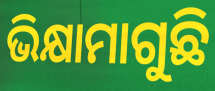
ଭିକ୍ଷାମାଗୁଛି